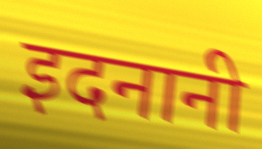
इदनानी